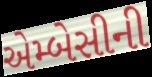
એમ્બેસીની